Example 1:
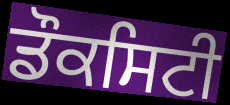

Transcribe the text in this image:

ਡੌਕਸਿਟੀ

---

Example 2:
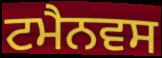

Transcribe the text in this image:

ਟਮੈਨਵਸ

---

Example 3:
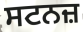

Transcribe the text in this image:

ਸਟਨਜ਼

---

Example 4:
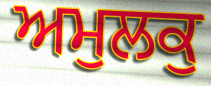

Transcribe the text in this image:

ਅਮੁਲਕੁ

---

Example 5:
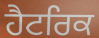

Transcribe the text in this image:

ਹੈਟਰਿਕ